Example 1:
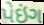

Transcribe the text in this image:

પેઇંગ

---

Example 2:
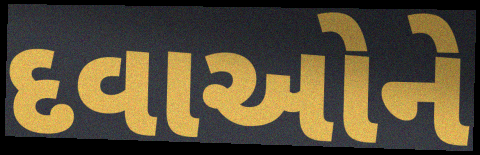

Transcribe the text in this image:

દવાઓને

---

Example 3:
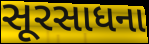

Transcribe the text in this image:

સૂરસાધના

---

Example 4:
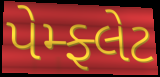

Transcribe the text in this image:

પેમ્ફ્લેટ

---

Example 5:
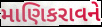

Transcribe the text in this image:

માણિકરાવને